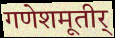
गणेशमूतीर्